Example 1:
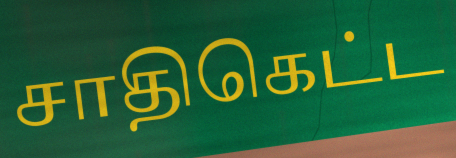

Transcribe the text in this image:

சாதிகெட்ட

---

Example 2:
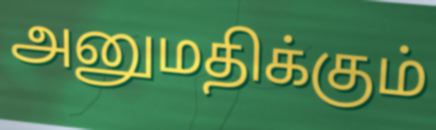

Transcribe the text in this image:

அனுமதிக்கும்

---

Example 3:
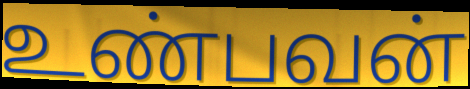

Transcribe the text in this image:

உண்பவன்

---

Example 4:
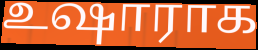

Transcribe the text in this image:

உஷாராக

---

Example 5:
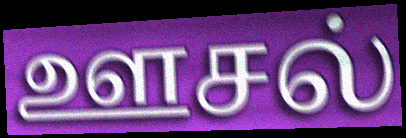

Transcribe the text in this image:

ஊசல்